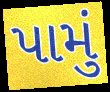
પામું